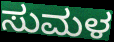
ಸುಮಳ